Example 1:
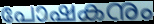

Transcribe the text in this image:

പോഷകനും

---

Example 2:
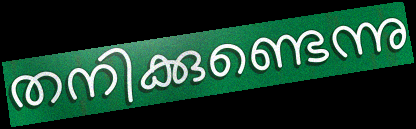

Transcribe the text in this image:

തനിക്കുണ്ടെന്നു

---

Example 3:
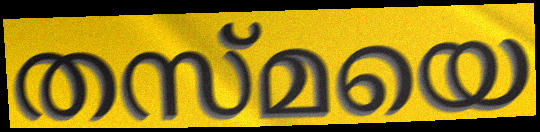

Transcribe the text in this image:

തസ്മയെ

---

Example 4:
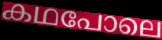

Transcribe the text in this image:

കഥപോലെ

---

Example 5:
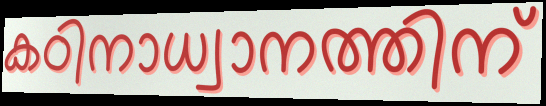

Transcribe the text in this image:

കഠിനാധ്വാനത്തിന്